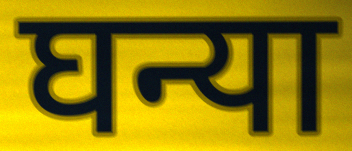
घन्या